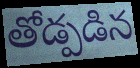
తోడ్పడిన